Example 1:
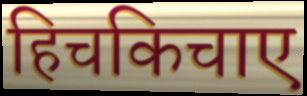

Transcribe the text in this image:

हिचकिचाए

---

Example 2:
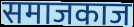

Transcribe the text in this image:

समाजकाज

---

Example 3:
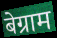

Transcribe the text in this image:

बेग्राम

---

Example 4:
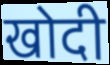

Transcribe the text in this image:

खोदी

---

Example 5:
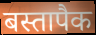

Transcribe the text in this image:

बस्तापैक